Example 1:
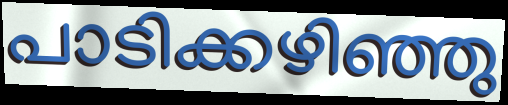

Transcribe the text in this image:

പാടിക്കഴിഞ്ഞു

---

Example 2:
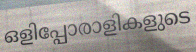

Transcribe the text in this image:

ഒളിപ്പോരാളികളുടെ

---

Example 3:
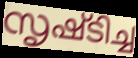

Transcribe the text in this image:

സൃഷ്‌ടിച്ച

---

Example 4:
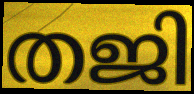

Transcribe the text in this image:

തജി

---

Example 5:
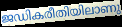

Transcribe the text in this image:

ജഡികരീതിയിലാണു